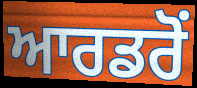
ਆਰਡਰੋਂ